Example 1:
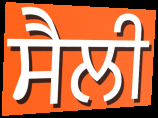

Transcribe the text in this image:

ਸੈਲੀ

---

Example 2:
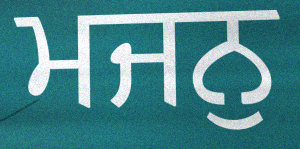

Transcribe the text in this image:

ਮਜਨੁ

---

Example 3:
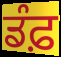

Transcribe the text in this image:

ਡੰਫ਼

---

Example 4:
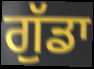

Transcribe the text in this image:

ਗੁੱਡਾ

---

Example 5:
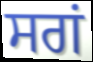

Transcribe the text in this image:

ਸਗਂ